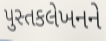
પુસ્તકલેખનને